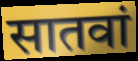
सातवां